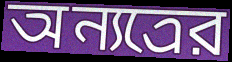
অন্যত্রের